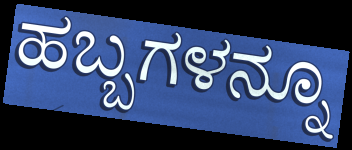
ಹಬ್ಬಗಳನ್ನೂ